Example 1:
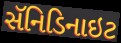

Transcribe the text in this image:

સૅનિડિનાઇટ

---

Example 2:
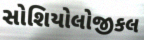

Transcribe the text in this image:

સોશિયોલોજીકલ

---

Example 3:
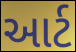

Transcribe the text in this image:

આર્ટ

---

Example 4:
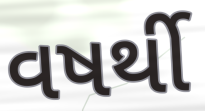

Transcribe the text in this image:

વષર્થી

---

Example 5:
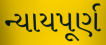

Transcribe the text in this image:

ન્યાયપૂર્ણ